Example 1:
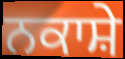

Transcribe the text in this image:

ਨਕਾਸ਼ੇ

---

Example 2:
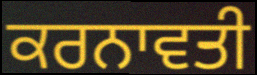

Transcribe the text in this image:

ਕਰਨਾਵਤੀ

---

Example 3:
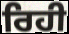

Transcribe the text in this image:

ਰਿਹੀ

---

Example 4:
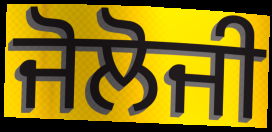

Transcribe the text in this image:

ਜੋਲੋਜੀ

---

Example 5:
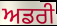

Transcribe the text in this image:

ਅਡਰੀ